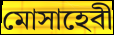
মোসাহেবী